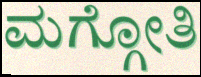
ಮಗ್ಗೋತಿ